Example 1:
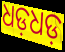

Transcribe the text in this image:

ଧଡ଼ଧଡ଼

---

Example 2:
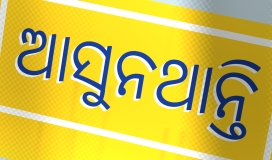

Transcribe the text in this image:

ଆସୁନଥାନ୍ତି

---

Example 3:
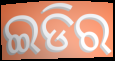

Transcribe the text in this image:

ଇଡିର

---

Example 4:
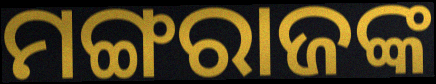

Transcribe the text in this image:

ମଙ୍ଗରାଜଙ୍କ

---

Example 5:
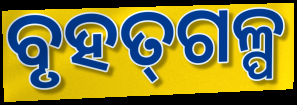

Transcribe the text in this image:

ବୃହତ୍‌ଗଳ୍ପ